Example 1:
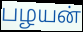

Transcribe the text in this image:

பழயன்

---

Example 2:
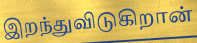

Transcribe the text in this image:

இறந்துவிடுகிறான்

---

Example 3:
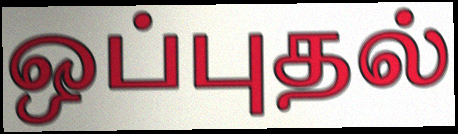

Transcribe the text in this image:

ஒப்புதல்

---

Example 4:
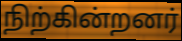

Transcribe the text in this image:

நிற்கின்றனர்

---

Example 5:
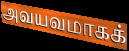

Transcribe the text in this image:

அவயவமாகக்